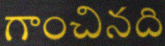
గాంచినది